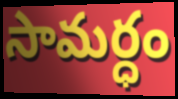
సామర్ధం